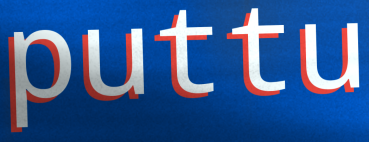
puttu